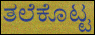
ತಲೆಕೊಟ್ಟ